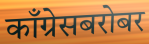
काँग्रेसबरोबर